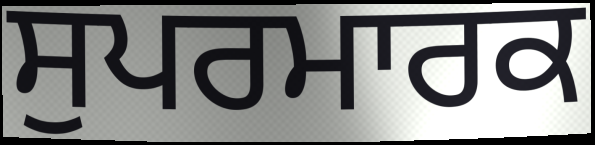
ਸੁਪਰਮਾਰਕ